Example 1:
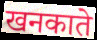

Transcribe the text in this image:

खनकाते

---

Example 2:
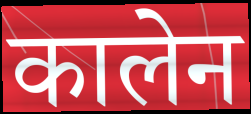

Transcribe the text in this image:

कालेन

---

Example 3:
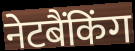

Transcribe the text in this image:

नेटबैंकिंग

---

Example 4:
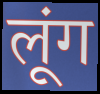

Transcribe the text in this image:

लूंग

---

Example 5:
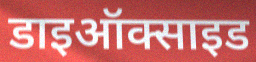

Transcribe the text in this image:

डाइऑक्साइड